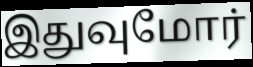
இதுவுமோர்